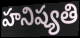
హనిష్యతి